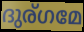
ദുര്ഗമേ